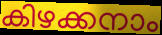
കിഴക്കനാം